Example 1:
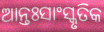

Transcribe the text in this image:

ଆନ୍ତଃସାଂସ୍କୃତିକ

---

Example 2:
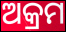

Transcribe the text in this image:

ଅକ୍ରମ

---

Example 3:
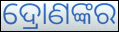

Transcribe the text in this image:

ଦ୍ରୋଣଙ୍କର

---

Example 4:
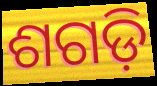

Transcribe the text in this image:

ଶଗଡ଼ି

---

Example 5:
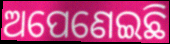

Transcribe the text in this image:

ଅପେଣେଇଛି